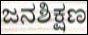
ಜನಶಿಕ್ಷಣ